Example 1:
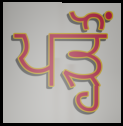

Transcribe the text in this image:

ਪੜ੍ਹੌਂ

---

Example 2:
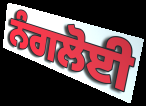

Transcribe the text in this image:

ਨੰਗਲੋਈ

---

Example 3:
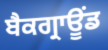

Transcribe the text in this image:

ਬੈਕਗ੍ਰਾਊਂਡ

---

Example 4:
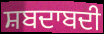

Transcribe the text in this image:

ਸ਼ਬਦਾਬਦੀ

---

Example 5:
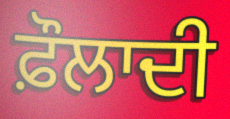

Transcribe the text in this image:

ਫ਼ੌਲਾਦੀ